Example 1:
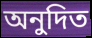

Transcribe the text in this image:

অনুদিত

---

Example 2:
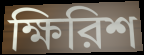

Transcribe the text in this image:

ক্ষিরিশ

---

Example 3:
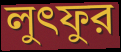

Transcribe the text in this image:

লুৎফুর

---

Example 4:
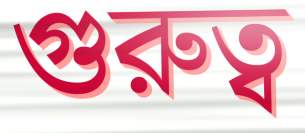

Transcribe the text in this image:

গুরুত্ব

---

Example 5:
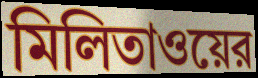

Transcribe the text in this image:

মিলিতাওয়ের